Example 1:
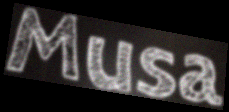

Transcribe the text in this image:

Musa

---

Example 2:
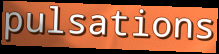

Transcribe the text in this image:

pulsations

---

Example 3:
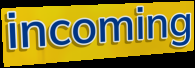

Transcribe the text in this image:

incoming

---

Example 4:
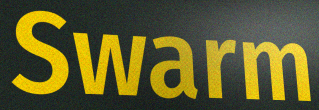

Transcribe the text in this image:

Swarm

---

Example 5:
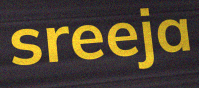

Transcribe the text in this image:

sreeja